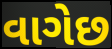
વાગેછ